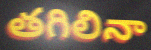
తగిలినా